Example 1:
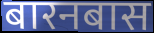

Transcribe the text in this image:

बारनबास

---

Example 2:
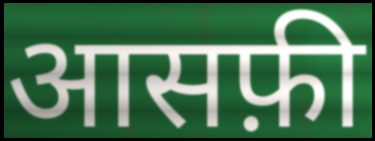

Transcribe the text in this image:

आसफ़ी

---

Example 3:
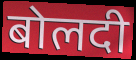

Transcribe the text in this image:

बोलदी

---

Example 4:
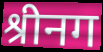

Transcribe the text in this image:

श्रीनग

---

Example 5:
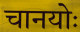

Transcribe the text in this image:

चानयोः